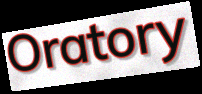
Oratory